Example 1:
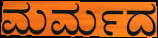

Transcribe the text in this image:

ಮರ್ಮದ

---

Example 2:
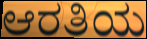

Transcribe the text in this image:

ಆರತಿಯ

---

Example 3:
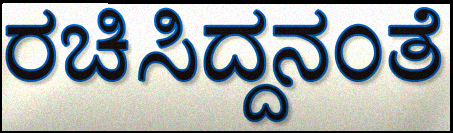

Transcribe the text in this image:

ರಚಿಸಿದ್ದನಂತೆ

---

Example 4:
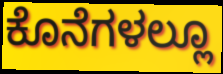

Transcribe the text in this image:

ಕೊನೆಗಳಲ್ಲೂ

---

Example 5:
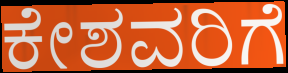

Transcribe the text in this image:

ಕೇಶವರಿಗೆ